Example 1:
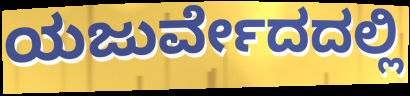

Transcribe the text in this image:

ಯಜುರ್ವೇದದಲ್ಲಿ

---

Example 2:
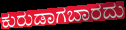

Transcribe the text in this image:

ಕುರುಡಾಗಬಾರದು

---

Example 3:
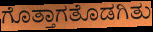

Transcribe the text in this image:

ಗೊತ್ತಾಗತೊಡಗಿತು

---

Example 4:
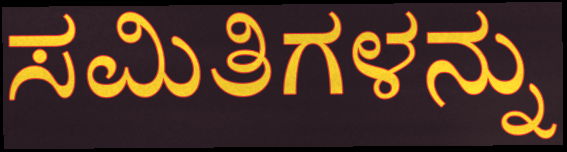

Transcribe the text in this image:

ಸಮಿತಿಗಳನ್ನು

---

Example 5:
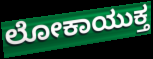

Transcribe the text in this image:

ಲೋಕಾಯುಕ್ತ